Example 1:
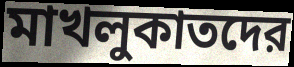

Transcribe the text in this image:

মাখলুকাতদের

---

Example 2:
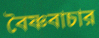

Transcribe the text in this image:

বৈষ্ণবাচার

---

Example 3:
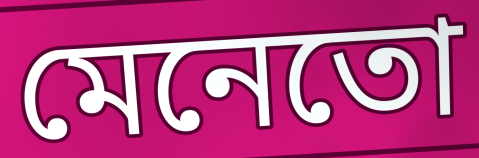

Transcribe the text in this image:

মেনেতো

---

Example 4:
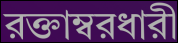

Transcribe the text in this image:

রক্তাম্বরধারী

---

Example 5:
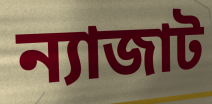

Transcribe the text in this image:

ন্যাজাট